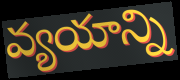
వ్యయాన్ని